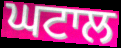
ਘਟਾਲ